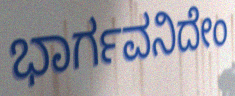
ಭಾರ್ಗವನಿದೇಂ